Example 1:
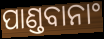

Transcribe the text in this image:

ପାଣ୍ଡବାନାଂ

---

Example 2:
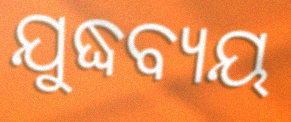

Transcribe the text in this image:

ଯୁଦ୍ଧବ୍ୟୟ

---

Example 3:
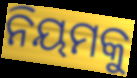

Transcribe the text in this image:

ନିୟମକୁ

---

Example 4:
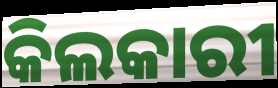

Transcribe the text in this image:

କିଲକାରୀ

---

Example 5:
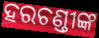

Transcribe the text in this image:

ହରଚଣ୍ଡୀଙ୍କ